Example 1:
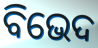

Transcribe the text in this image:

ବିଭେଦ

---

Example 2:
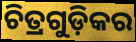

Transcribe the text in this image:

ଚିତ୍ରଗୁଡ଼ିକର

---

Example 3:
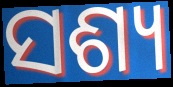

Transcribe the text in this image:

ସଶ୍ୟ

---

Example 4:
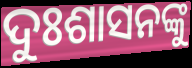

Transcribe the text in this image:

ଦୁଃଶାସନଙ୍କୁ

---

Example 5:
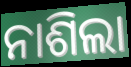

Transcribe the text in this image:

ନାଶିଲା